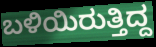
ಬಳಿಯಿರುತ್ತಿದ್ದ